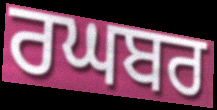
ਰਘਬਰ